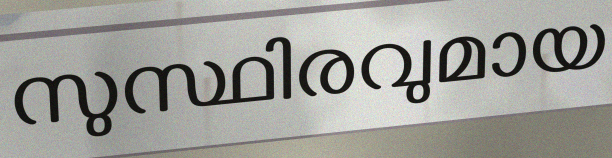
സുസ്ഥിരവുമായ